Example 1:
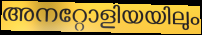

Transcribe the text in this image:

അനറ്റോളിയയിലും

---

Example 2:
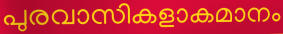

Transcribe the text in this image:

പുരവാസികളാകമാനം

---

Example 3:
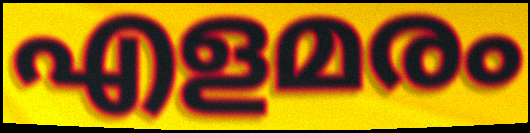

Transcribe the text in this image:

എളമരം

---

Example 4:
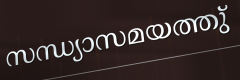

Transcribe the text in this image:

സന്ധ്യാസമയത്തു്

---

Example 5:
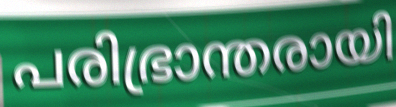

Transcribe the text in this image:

പരിഭ്രാന്തരായി